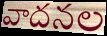
వాదనల